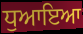
ਧੁਆਇਆ